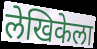
लेखिकेला